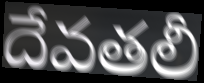
దేవతలీ